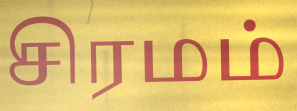
சிரமம்